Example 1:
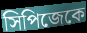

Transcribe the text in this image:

সিপিজেকে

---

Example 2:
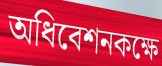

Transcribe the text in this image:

অধিবেশনকক্ষে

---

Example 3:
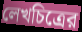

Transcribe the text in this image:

লেখচিত্রের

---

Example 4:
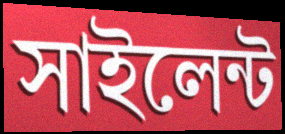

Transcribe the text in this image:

সাইলেন্ট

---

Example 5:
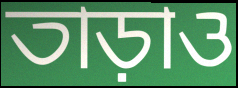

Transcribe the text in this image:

তাড়াও